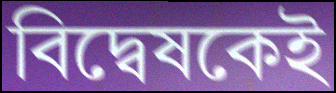
বিদ্বেষকেই